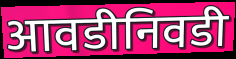
आवडीनिवडी